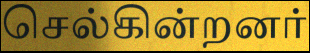
செல்கின்றனர்